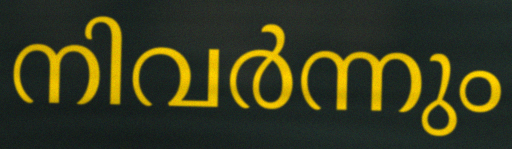
നിവർന്നും